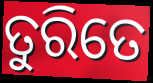
ତୁରିତେ